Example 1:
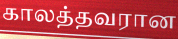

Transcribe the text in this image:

காலத்தவரான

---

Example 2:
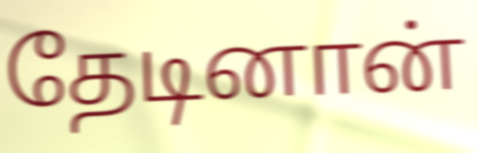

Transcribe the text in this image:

தேடினான்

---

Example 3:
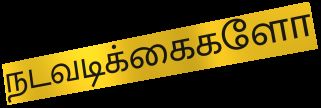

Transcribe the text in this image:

நடவடிக்கைகளோ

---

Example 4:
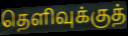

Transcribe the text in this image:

தெளிவுக்குத்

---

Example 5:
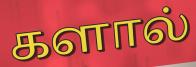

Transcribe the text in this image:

களால்